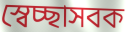
স্বেচ্ছাসবক